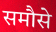
समौसे